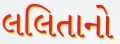
લલિતાનો